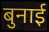
बुनाई